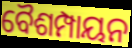
ବୈଶମ୍ପାୟନ